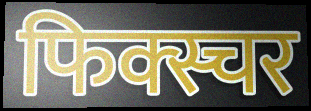
फिक्स्चर